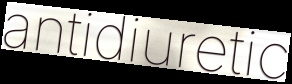
antidiuretic